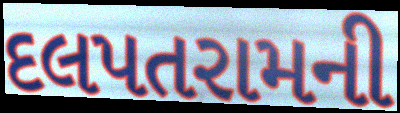
દલપતરામની